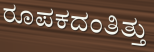
ರೂಪಕದಂತಿತ್ತು